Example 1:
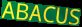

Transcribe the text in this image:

ABACUS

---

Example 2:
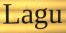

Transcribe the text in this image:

Lagu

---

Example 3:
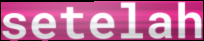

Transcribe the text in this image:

setelah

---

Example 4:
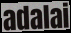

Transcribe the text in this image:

adalai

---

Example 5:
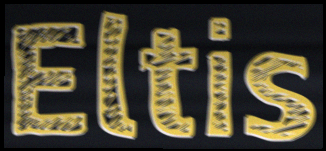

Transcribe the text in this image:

Eltis